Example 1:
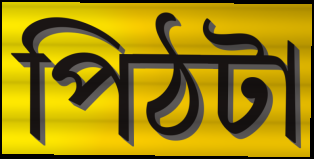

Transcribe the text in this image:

পিঠটা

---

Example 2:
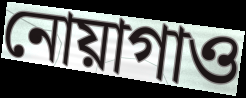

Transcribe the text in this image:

নোয়াগাও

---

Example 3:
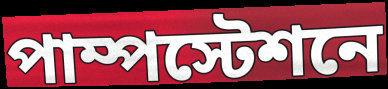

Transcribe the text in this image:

পাম্পস্টেশনে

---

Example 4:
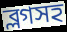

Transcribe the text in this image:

ব্লগসহ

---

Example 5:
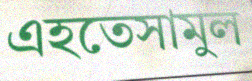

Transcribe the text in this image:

এহতেসামুল